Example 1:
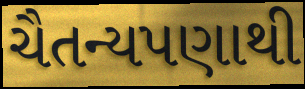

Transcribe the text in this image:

ચૈતન્યપણાથી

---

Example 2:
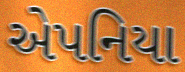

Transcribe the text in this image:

એપનિયા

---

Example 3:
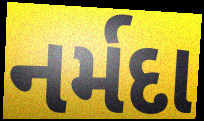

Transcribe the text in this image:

નર્મદા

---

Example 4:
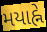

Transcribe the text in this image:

મયાહ્ને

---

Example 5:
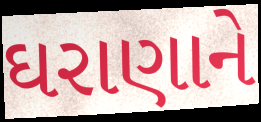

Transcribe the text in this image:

ઘરાણાને